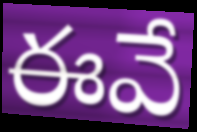
ఈవే